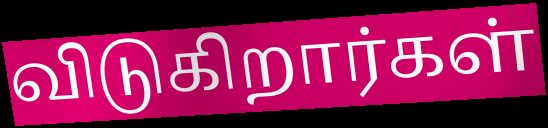
விடுகிறார்கள்